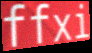
ffxi